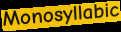
Monosyllabic